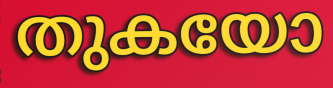
തുകയോ